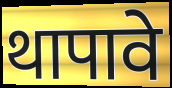
थापावे